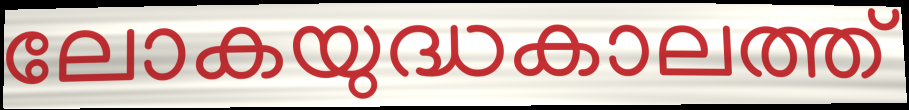
ലോകയുദ്ധകാലത്ത്